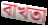
বাখতা